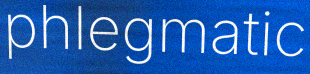
phlegmatic